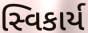
સ્વિકાર્ય